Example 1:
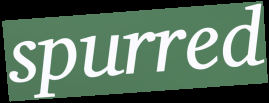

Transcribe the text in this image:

spurred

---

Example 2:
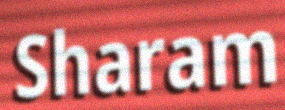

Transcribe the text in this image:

Sharam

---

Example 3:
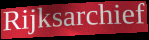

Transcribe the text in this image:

Rijksarchief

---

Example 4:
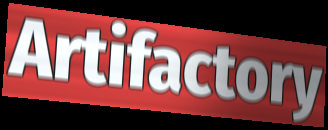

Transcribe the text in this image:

Artifactory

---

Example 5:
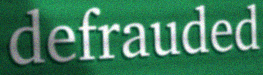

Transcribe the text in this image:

defrauded